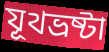
যূথভ্রষ্টা